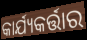
କାର୍ଯ୍ୟକର୍ତ୍ତାର